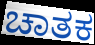
ಚಾತಕ